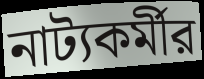
নাট্যকর্মীর